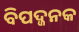
ବିପଦ୍ଜନକ